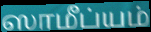
ஸாமீப்யம்